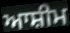
ਆਸ਼ੀਮ